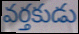
వర్తకుడు